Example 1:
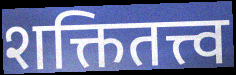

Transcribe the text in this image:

शक्तितत्त्व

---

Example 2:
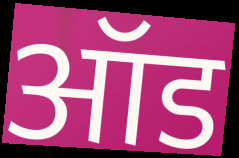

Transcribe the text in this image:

ऑड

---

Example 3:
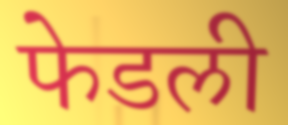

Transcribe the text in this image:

फेडली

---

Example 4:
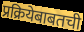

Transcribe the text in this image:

प्रक्रियेबाबतची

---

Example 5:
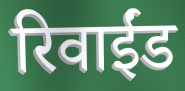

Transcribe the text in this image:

रिवाईंड